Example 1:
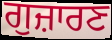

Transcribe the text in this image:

ਗੁਜ਼ਾਰਣ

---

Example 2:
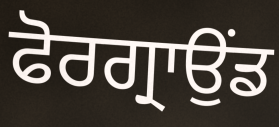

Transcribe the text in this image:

ਫੋਰਗ੍ਰਾਉਂਡ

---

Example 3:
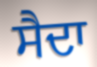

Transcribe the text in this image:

ਸੈਦਾ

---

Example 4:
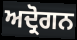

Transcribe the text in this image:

ਅਦ੍ਰੋਗਨ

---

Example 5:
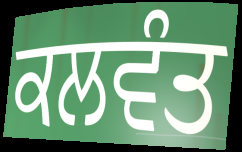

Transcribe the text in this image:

ਕਲਵੰਤ